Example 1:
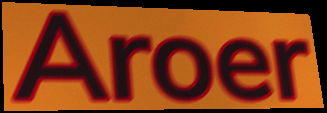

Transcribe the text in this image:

Aroer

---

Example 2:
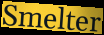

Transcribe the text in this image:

Smelter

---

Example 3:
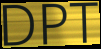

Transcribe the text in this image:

DPT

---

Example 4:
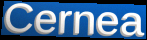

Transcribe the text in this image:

Cernea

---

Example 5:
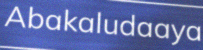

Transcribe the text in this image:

Abakaludaaya